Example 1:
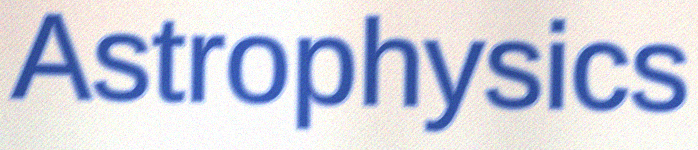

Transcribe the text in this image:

Astrophysics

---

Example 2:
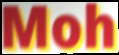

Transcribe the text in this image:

Moh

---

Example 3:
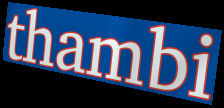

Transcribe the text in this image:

thambi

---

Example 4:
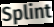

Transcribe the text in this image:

Splint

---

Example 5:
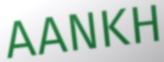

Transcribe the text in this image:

AANKH